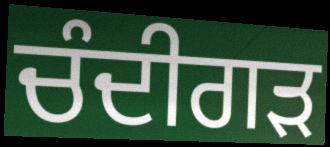
ਚੰਦੀਗੜ